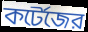
কর্টেজের